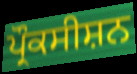
ਪ੍ਰੌਕਸੀਸ਼ਨ